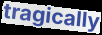
tragically